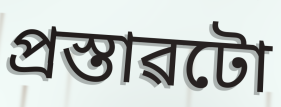
প্ৰস্তাৱটো